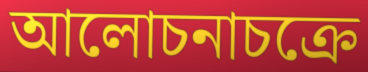
আলোচনাচক্রে